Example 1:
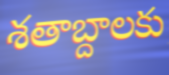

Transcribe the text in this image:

శతాబ్దాలకు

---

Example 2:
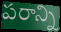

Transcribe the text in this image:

పరాన్ని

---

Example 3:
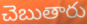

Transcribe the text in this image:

చెబుతారు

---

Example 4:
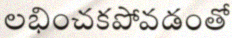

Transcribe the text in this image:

లభించకపోవడంతో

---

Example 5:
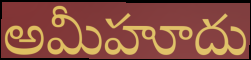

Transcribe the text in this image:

అమీహూదు